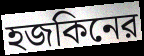
হজকিনের